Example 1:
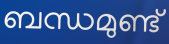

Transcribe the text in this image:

ബന്ധമുണ്ട്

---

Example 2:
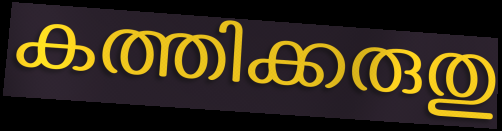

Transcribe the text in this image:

കത്തിക്കരുതു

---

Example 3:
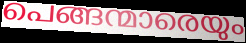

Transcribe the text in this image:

പെങ്ങന്മാരെയും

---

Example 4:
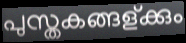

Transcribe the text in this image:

പുസ്തകങ്ങള്ക്കും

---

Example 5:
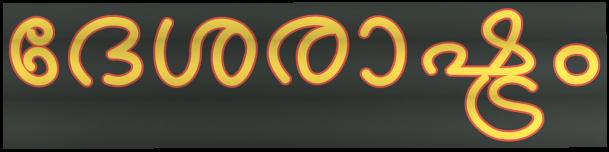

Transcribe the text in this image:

ദേശരാഷ്ട്രം